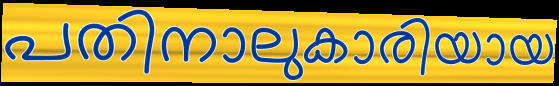
പതിനാലുകാരിയായ